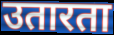
उतारता